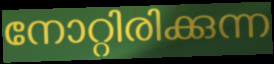
നോറ്റിരിക്കുന്ന